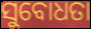
ସୁବୋଧତା